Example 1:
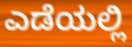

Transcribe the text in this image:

ಎಡೆಯಲ್ಲಿ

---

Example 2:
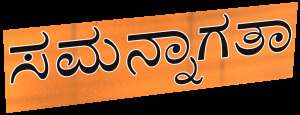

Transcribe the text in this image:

ಸಮನ್ನಾಗತಾ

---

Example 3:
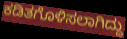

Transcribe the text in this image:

ಕಡಿತಗೊಳಿಸಲಾಗಿದ್ದು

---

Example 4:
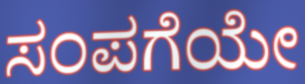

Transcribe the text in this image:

ಸಂಪಗೆಯೇ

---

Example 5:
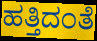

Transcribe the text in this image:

ಹತ್ತಿದಂತೆ